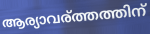
ആര്യാവര്ത്തത്തിന്